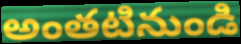
అంతటినుండి